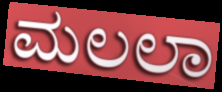
ಮಲಲಾ